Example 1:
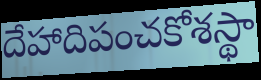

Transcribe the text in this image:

దేహాదిపంచకోశస్థా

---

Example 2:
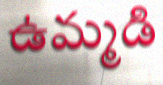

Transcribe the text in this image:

ఉమ్మడి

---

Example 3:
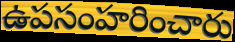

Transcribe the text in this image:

ఉపసంహరించారు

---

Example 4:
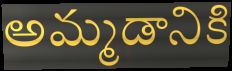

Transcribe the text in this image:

అమ్మడానికి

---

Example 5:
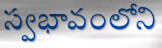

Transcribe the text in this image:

స్వభావంలోని